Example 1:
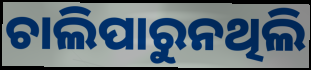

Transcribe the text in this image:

ଚାଲିପାରୁନଥିଲି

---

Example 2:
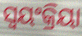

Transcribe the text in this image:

ସ୍ବୟଂକ୍ରିୟା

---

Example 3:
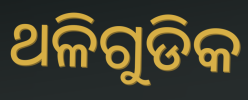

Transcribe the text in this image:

ଥଳିଗୁଡିକ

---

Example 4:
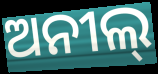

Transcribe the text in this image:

ଅନୀଲ୍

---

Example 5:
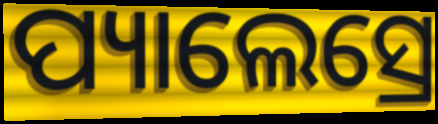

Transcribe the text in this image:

ପ୍ୟାଲେସ୍ରେ